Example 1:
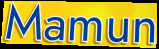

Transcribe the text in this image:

Mamun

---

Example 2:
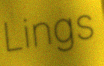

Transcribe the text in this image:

Lings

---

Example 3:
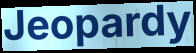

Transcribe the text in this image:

Jeopardy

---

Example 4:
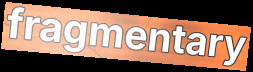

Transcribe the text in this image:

fragmentary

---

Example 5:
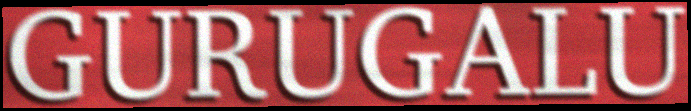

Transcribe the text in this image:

GURUGALU